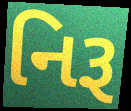
નિરૂ